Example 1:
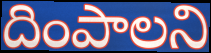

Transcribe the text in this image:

దింపాలని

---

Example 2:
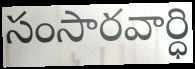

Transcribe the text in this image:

సంసారవార్ధి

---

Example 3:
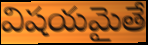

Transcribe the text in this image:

విషయమైతే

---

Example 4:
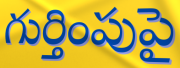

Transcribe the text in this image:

గుర్తింపుపై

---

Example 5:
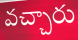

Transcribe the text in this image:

వచ్చారు